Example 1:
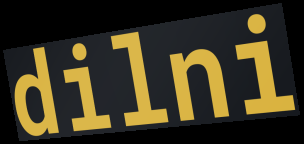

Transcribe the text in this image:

dilni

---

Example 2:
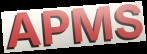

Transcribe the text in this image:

APMS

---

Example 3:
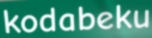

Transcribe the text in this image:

kodabeku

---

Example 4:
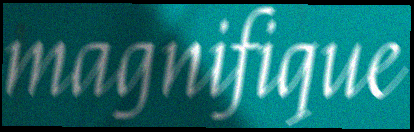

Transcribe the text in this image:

magnifique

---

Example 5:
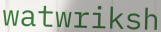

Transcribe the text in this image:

watwriksh